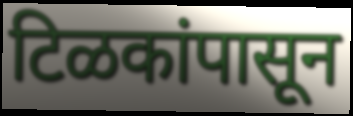
टिळकांपासून